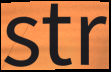
str